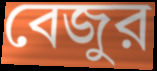
বেজুর